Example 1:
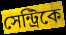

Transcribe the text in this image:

সেন্ট্রিকে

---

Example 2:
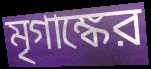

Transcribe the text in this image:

মৃগাঙ্কের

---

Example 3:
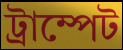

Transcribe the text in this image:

ট্রাম্পেট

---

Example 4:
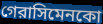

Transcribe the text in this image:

গেরাসিমেনকো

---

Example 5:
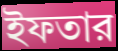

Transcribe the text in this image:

ইফতার